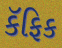
કૅફિક